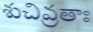
శుచివ్రతాః